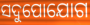
ସଦୁପୋଯୋଗ